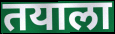
तयाला